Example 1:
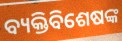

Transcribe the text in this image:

ବ୍ୟକ୍ତିବିଶେଷଙ୍କ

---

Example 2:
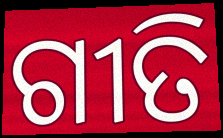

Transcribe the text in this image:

ଗୀତି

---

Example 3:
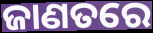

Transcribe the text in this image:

ଜାଣତରେ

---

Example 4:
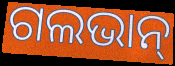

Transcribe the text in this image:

ଗଲଭାନ୍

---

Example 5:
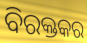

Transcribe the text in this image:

ବିରକ୍ତକର